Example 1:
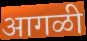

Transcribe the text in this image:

आगळी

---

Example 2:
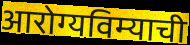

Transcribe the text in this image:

आरोग्यविम्याची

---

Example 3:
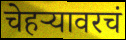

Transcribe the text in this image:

चेहऱ्यावरचं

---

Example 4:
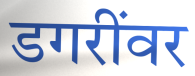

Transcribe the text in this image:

डगरींवर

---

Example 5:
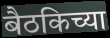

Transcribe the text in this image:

बैठकिच्या